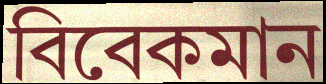
বিবেকমান